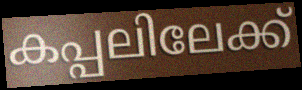
കപ്പലിലേക്ക്